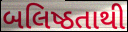
બલિષ્ઠતાથી